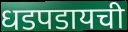
धडपडायची